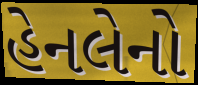
હેનલેનો